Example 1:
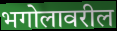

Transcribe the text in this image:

भगोलावरील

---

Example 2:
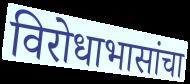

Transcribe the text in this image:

विरोधाभासांचा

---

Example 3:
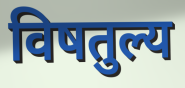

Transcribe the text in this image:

विषतुल्य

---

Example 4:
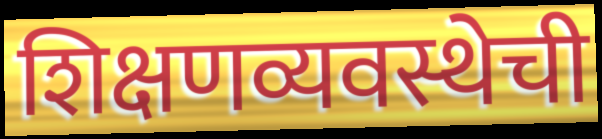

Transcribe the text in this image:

शिक्षणव्यवस्थेची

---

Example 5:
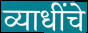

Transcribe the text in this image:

व्याधींचे